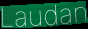
Laudan